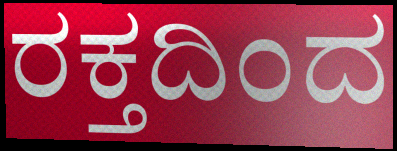
ರಕ್ತದಿಂದ